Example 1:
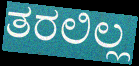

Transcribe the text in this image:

ತರಲಿಲ್ಲ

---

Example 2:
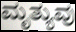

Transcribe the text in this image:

ಮೃತ್ಯುವು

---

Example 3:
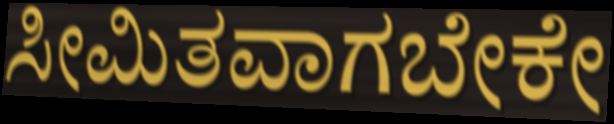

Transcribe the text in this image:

ಸೀಮಿತವಾಗಬೇಕೇ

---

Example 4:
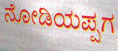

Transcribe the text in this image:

ನೋಡಿಯಪ್ಪಗ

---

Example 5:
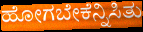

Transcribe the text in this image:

ಹೋಗಬೇಕೆನ್ನಿಸಿತು